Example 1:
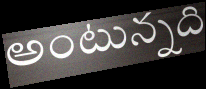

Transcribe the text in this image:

అంటున్నది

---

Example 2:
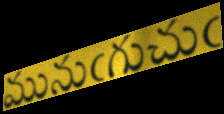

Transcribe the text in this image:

మునుఁగుచుఁ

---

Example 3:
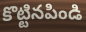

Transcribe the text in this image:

కొట్టినపిండి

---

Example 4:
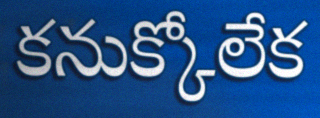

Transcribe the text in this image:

కనుక్కోలేక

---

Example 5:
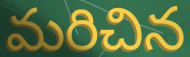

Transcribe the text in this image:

మరిచిన